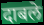
दाबले